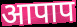
आपाप